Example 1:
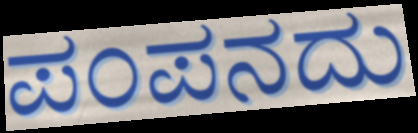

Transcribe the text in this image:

ಪಂಪನದು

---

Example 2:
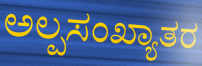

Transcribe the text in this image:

ಅಲ್ಪಸಂಖ್ಯಾತರ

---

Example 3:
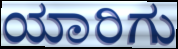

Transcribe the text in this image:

ಯಾರಿಗು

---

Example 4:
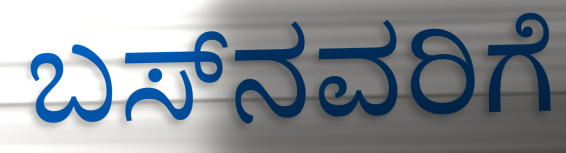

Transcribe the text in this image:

ಬಸ್‌ನವರಿಗೆ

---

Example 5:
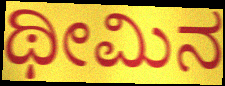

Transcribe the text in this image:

ಥೀಮಿನ